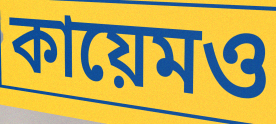
কায়েমও